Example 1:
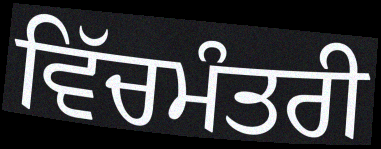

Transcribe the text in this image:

ਵਿੱਚਮੰਤਰੀ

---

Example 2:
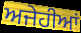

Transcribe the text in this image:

ਅਜੇਹੀਆਂ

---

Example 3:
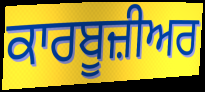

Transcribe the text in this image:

ਕਾਰਬੂਜ਼ੀਅਰ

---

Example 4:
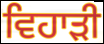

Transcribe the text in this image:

ਵਿਹਾੜੀ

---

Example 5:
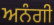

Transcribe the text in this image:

ਅਨੰਗੀ